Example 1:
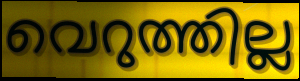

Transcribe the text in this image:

വെറുത്തില്ല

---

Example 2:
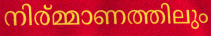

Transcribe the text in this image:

നിര്മ്മാണത്തിലും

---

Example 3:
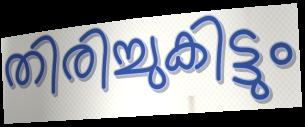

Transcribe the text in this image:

തിരിച്ചുകിട്ടും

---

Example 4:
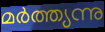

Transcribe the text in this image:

മർത്ത്യന്നു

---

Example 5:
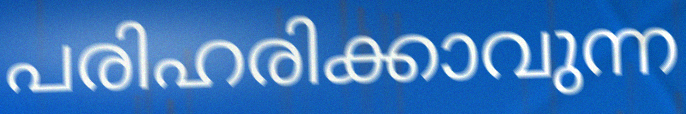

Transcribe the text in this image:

പരിഹരിക്കാവുന്ന